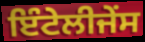
ਇੰਟੇਲੀਜੇੰਸ